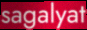
sagalyat